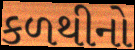
કળથીનો